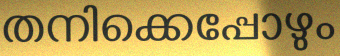
തനിക്കെപ്പോഴും